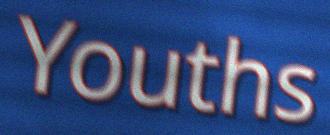
Youths